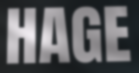
HAGE